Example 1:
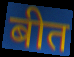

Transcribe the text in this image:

बीत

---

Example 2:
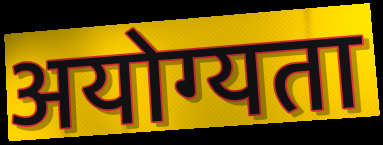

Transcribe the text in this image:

अयोग्यता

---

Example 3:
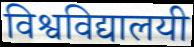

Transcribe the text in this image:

विश्वविद्यालयी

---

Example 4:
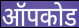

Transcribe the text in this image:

ऑपकोड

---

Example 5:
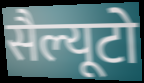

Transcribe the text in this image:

सैल्यूटो